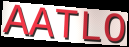
AATLO